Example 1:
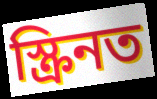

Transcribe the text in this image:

স্ক্ৰিনত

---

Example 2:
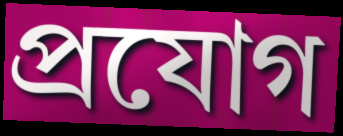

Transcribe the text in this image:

প্ৰযোগ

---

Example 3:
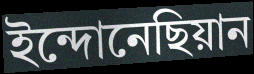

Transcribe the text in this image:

ইন্দোনেছিয়ান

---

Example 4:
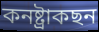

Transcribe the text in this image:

কনষ্ট্ৰাকছন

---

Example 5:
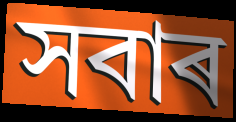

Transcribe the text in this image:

সবাৰ